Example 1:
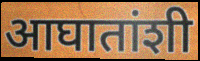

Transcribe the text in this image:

आघातांशी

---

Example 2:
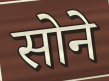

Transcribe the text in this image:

सोने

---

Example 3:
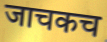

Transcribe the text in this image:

जाचकच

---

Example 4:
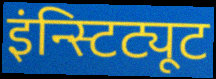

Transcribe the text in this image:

इंन्स्टिट्यूट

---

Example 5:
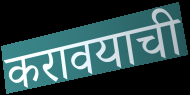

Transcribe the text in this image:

करावयाची